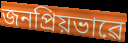
জনপ্ৰিয়ভাৱে